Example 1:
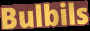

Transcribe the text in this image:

Bulbils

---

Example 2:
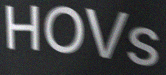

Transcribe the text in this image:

HOVs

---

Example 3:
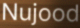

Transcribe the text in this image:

Nujood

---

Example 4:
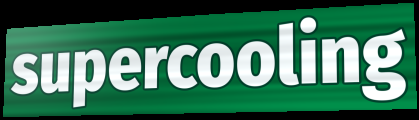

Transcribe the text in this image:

supercooling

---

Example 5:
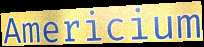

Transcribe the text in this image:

Americium